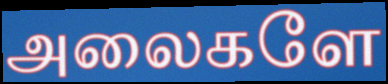
அலைகளே